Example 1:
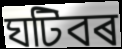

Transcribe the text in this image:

ঘটিবৰ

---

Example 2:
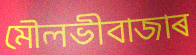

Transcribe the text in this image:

মৌলভীবাজাৰ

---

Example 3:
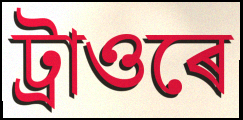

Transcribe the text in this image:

ট্ৰাওৰে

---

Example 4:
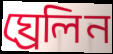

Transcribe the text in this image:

ঘ্ৰেলিন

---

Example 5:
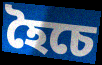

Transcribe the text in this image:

হৈচে